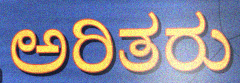
ಅರಿತರು